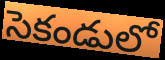
సెకండులో